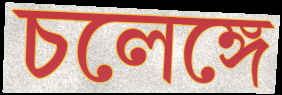
চলেঙ্গে